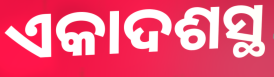
ଏକାଦଶସ୍ଥ